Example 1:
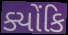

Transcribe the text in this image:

ક્યોંકિ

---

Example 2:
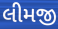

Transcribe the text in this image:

લીમજી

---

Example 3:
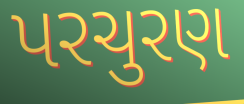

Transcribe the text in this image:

પરચુરણ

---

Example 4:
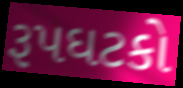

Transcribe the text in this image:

રૂપઘટકો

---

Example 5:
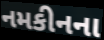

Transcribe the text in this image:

નમકીનના